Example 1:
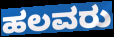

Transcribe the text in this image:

ಹಲವರು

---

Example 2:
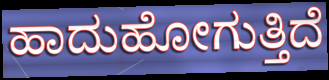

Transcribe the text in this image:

ಹಾದುಹೋಗುತ್ತಿದೆ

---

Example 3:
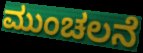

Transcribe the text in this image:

ಮುಂಚಲನೆ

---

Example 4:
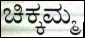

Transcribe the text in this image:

ಚಿಕ್ಕಮ್ಮ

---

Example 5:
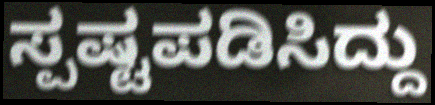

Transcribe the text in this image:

ಸ್ಪಷ್ಟಪಡಿಸಿದ್ದು